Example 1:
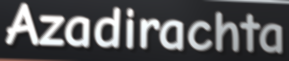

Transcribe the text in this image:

Azadirachta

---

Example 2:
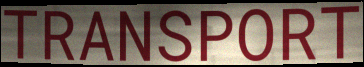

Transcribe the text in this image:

TRANSPORT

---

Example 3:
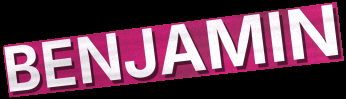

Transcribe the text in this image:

BENJAMIN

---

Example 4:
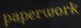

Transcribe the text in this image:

paperwork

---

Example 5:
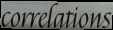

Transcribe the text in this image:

correlations